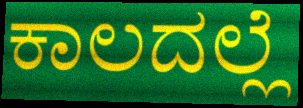
ಕಾಲದಲ್ಲೆ